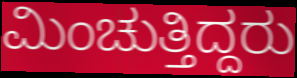
ಮಿಂಚುತ್ತಿದ್ದರು